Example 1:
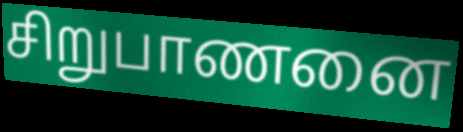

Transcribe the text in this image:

சிறுபாணனை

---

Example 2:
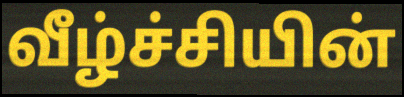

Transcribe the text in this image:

வீழ்ச்சியின்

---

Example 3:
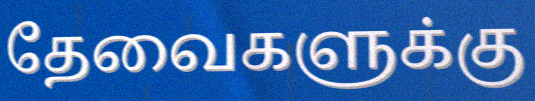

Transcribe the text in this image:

தேவைகளுக்கு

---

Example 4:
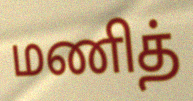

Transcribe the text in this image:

மணித்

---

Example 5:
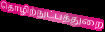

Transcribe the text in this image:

தொழிற்நுட்பத்துறை